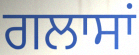
ਗਲਾਸਾਂ